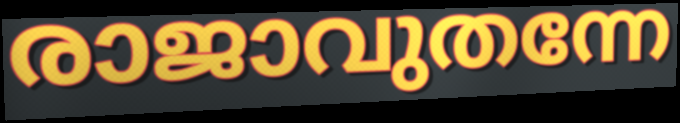
രാജാവുതന്നേ